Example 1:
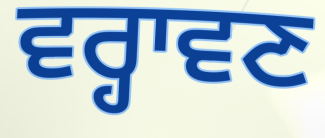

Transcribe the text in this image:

ਵਰ੍ਹਾਵਣ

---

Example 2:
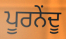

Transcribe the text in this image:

ਪੂਰਨੇਂਦੂ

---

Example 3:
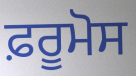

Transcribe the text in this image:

ਫ਼ਰੂਮੋਸ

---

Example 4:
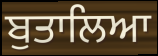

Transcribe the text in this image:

ਬੁਤਾਲਿਆ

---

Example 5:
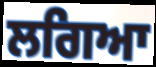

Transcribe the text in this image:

ਲਗਿਆ